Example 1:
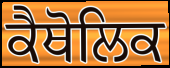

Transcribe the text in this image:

ਕੈਥੋਲਿਕ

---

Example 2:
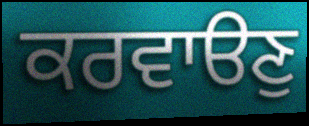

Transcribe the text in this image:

ਕਰਵਾੳਣੁ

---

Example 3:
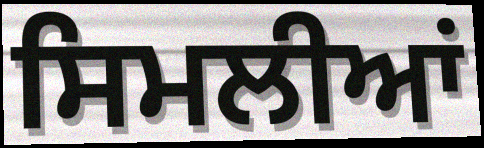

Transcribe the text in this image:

ਸਿਮਲੀਆਂ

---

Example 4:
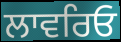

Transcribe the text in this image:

ਲਾਵਰਿਓ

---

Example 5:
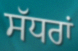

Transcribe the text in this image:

ਸੱਧਰਾਂ